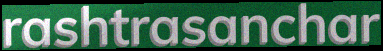
rashtrasanchar